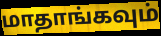
மாதாங்கவும்